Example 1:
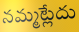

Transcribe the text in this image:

నమ్మట్లేదు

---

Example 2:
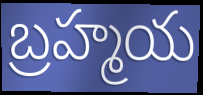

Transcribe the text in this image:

బ్రహ్మయ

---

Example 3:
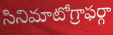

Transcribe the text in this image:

సినిమాటోగ్రాఫర్గా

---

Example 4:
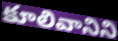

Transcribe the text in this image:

కూలివానిని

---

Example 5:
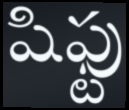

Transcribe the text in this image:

షిఫ్టు